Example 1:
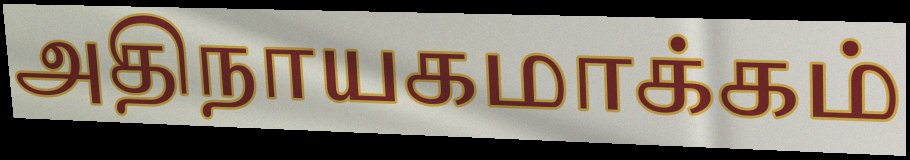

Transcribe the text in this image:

அதிநாயகமாக்கம்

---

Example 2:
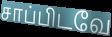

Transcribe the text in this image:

சாப்பிடவே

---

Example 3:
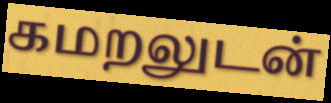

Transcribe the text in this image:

கமறலுடன்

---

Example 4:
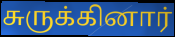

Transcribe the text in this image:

சுருக்கினார்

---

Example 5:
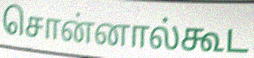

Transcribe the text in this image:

சொன்னால்கூட